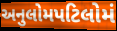
અનુલોમપટિલોમં